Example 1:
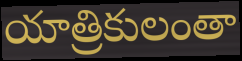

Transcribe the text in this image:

యాత్రికులంతా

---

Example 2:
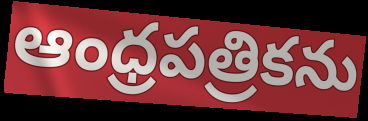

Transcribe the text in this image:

ఆంధ్రపత్రికను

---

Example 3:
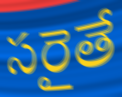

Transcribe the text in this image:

సరైతే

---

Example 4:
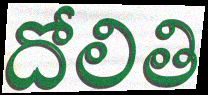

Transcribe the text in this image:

దోలితి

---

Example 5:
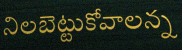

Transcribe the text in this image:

నిలబెట్టుకోవాలన్న